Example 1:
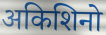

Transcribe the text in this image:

अकिशिनो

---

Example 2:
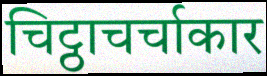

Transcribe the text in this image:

चिट्ठाचर्चाकार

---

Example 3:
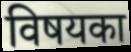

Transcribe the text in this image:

विषयका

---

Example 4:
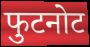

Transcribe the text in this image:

फुटनोट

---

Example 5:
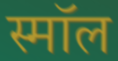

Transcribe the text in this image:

स्मॉल